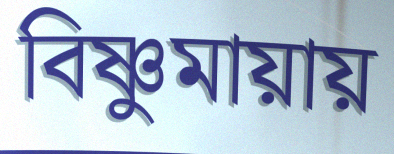
বিষ্ণুমায়ায়